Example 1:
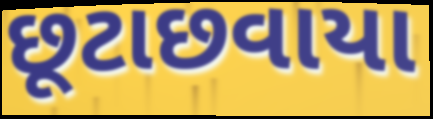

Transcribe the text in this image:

છૂટાછવાયા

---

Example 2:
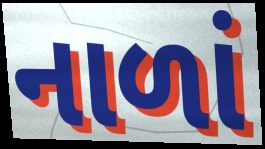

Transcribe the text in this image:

નાળાં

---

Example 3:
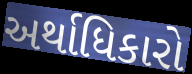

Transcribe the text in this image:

અર્થાધિકારો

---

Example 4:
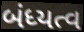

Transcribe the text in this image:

બંધ્યત્વ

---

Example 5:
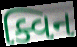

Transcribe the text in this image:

ક્વિન